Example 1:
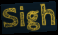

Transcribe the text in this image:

Sigh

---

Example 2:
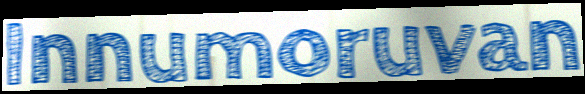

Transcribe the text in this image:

Innumoruvan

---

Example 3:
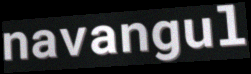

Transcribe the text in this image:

navangul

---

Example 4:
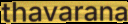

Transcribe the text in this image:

thavarana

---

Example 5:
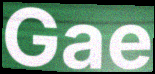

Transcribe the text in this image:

Gae